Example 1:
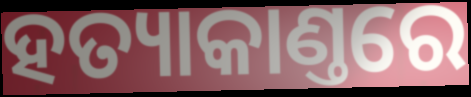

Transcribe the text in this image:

ହତ୍ୟାକାଣ୍ତରେ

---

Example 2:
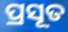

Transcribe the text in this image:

ପ୍ରସୂତ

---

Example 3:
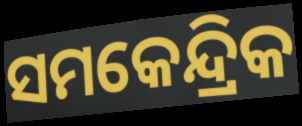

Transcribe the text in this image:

ସମକେନ୍ଦ୍ରିକ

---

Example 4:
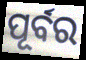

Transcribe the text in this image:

ପୂର୍ବର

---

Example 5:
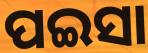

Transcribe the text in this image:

ପଇସା